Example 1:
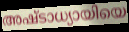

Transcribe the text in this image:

അഷ്ടാധ്യായിയെ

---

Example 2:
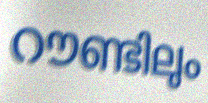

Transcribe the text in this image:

റൗണ്ടിലും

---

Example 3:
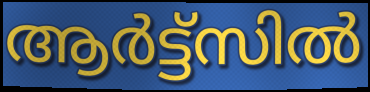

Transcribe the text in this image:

ആർട്ട്സിൽ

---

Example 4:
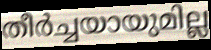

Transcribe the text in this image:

തീർച്ചയായുമില്ല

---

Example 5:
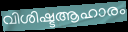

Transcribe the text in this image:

വിശിഷ്ടആഹാരം